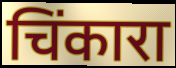
चिंकारा